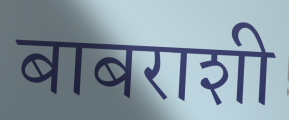
बाबराशी